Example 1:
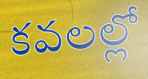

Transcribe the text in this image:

కవలల్లో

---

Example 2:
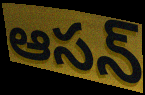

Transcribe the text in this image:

ఆసన్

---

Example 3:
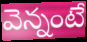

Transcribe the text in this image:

వెన్నంటే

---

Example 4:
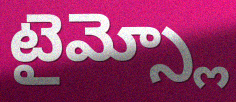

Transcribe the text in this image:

టైమ్స్లో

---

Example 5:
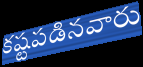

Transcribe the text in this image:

కష్టపడినవారు